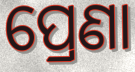
ପ୍ରେଣା